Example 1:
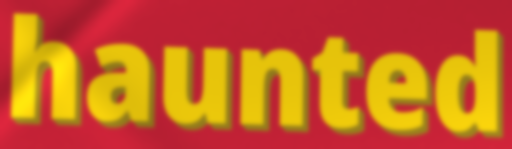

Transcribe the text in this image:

haunted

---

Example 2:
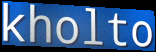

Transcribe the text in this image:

kholto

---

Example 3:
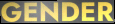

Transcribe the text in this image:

GENDER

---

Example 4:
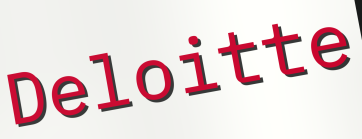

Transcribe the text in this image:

Deloitte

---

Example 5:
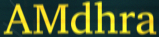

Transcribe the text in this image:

AMdhra